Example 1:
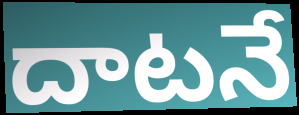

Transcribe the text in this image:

దాటనే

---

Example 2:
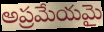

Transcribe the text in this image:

అప్రమేయమై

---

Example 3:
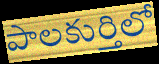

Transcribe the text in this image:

పాలకుర్తిలో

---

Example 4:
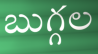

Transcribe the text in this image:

బుగ్గల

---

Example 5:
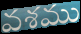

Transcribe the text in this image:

వశము